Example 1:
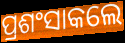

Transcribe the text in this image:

ପ୍ରଶଂସାକଲେ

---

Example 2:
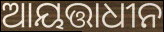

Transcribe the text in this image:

ଆୟତ୍ତାଧୀନ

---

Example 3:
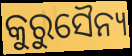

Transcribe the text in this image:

କୁରୁସୈନ୍ୟ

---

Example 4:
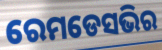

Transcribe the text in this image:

ରେମଡେସଭିର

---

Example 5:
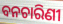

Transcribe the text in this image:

ବନଚାରିଣୀ